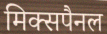
मिक्सपैनल